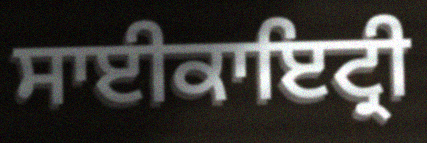
ਸਾਈਕਾਇਟ੍ਰੀ